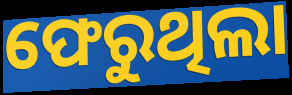
ଫେରୁଥିଲା